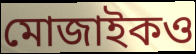
মোজাইকও